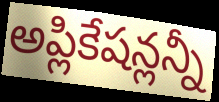
అప్లికేషన్లన్నీ